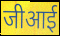
जीआई